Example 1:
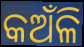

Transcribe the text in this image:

କଅଁଳି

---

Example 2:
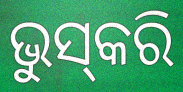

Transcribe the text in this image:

ଭୁସ୍‌କରି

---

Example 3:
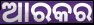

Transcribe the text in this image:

ଆରକର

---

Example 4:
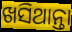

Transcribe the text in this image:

ଖସିଥାନ୍ତା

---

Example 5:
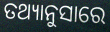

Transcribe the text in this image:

ତଥ୍ୟାନୁସାରେ